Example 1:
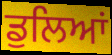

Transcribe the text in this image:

ਡੁਲਿਆਂ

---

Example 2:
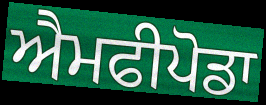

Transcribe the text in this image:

ਐਮਫੀਪੋਡਾ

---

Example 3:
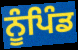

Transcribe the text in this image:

ਨੂੰਪਿੰਡ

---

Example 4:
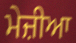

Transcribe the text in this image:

ਮੇਜ਼ੀਆ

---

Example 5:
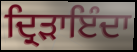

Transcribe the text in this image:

ਦ੍ਰਿੜਾਇੰਦਾ